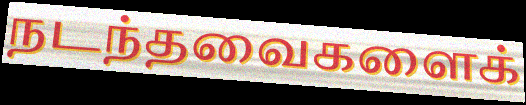
நடந்தவைகளைக்